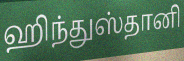
ஹிந்துஸ்தானி